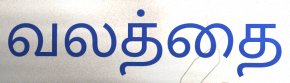
வலத்தை